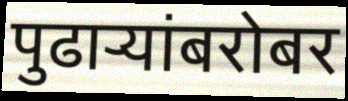
पुढाऱ्यांबरोबर